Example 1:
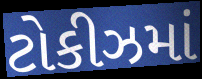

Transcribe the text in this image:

ટોકીઝમાં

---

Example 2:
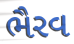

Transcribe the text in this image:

ભૈરવ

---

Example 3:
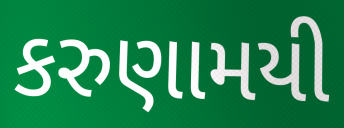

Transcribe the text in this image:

કરુણામયી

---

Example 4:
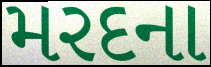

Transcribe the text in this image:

મરદના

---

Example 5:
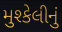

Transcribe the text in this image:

મુશ્કેલીનું